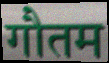
गौतम